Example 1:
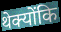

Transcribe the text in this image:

थेक्योंकि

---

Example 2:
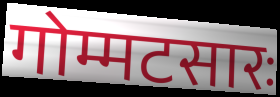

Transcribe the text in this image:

गोम्मटसारः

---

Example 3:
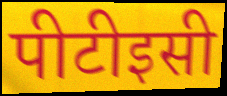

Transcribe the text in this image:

पीटीइसी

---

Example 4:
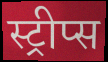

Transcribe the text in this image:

स्ट्रीप्स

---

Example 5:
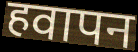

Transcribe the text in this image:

हवापन